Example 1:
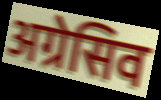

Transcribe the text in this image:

अग्रेसिव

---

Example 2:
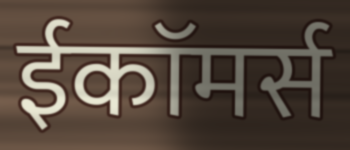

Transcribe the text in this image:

ईकॉमर्स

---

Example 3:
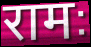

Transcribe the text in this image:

रामः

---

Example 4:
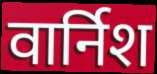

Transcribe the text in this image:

वार्निश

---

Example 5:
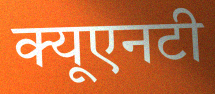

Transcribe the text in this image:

क्यूएनटी